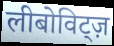
लीबोविट्ज़